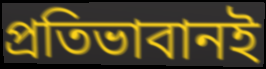
প্রতিভাবানই